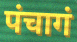
पंचागं